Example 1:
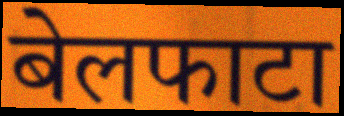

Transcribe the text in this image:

बेलफाटा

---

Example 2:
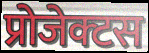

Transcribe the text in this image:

प्रोजेक्‍टस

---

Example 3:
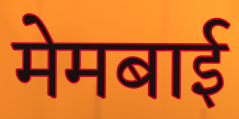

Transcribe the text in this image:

मेमबाई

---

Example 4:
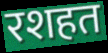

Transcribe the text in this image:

रशहत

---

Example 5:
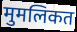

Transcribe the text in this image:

मुमलिकत